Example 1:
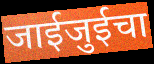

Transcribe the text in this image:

जाईजुईचा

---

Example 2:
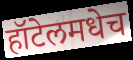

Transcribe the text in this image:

हॉटेलमधेच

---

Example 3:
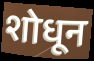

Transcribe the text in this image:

शोधून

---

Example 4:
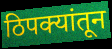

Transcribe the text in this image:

ठिपक्यांतून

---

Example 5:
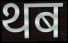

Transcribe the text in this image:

थब